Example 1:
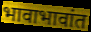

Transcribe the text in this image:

भावाभावांत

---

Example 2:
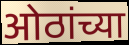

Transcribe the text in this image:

ओठांच्या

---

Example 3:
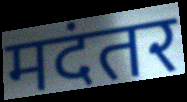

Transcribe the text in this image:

मदंतर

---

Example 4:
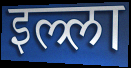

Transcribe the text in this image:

इल्ला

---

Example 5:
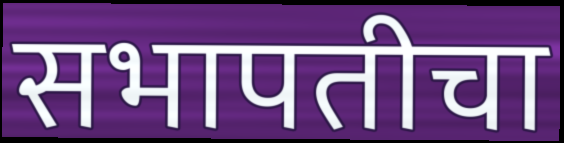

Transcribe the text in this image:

सभापतीचा